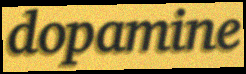
dopamine